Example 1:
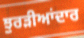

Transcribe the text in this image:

ਝੁਰੜੀਆਂਦਾਰ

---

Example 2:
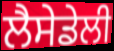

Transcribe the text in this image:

ਲੈਸੇਡੇਲੀ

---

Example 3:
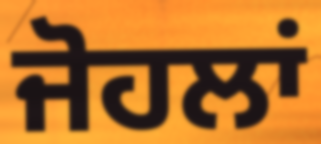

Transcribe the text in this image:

ਜੋਹਲਾਂ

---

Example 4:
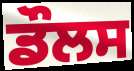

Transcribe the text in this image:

ਡੌਲਸ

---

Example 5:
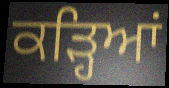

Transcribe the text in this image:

ਕੜ੍ਹਿਆਂ